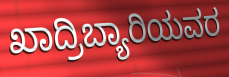
ಖಾದ್ರಿಬ್ಯಾರಿಯವರ